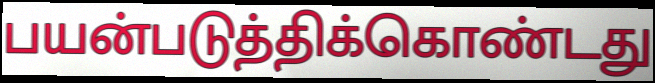
பயன்படுத்திக்கொண்டது